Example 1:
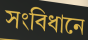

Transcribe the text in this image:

সংবিধানে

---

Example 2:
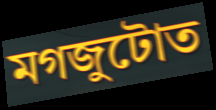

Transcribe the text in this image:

মগজুটোত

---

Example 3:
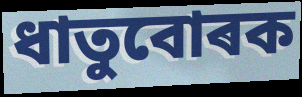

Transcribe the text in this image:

ধাতুবোৰক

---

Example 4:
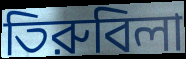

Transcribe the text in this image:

তিৰুবিলা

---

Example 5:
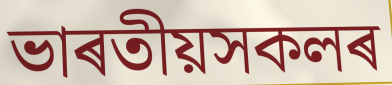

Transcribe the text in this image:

ভাৰতীয়সকলৰ